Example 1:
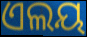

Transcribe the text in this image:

ଏଲୟ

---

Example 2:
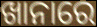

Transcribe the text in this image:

ଖାନାରେ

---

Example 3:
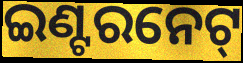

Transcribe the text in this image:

ଇଣ୍ଟରନେଟ୍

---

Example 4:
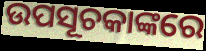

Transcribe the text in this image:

ଉପସୂଚକାଙ୍କରେ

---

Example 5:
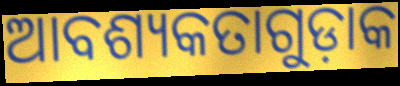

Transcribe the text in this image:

ଆବଶ୍ୟକତାଗୁଡ଼ାକ